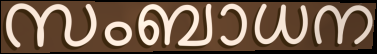
സംബാധന